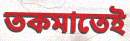
তকমাতেই